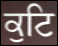
ਕੁਟਿ